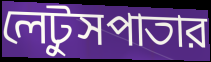
লেটুসপাতার